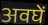
अवघें